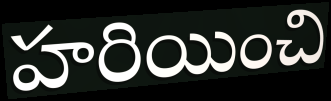
హరియించి